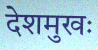
देशमुखः